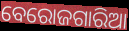
ବେରୋଜଗାରିଆ